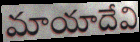
మాయాదేవి